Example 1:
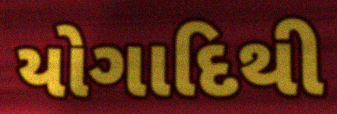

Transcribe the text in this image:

યોગાદિથી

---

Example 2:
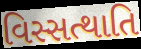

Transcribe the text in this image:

વિસ્સત્થાતિ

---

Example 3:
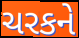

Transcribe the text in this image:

ચરકને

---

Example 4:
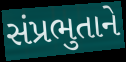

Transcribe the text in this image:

સંપ્રભુતાને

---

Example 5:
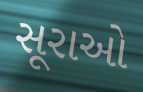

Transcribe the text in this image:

સૂરાઓ